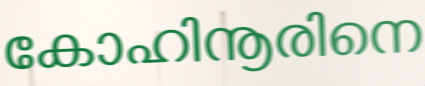
കോഹിനൂരിനെ